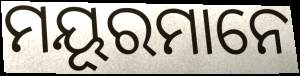
ମୟୂରମାନେ